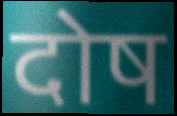
दोष